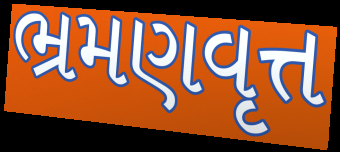
ભ્રમણવૃત્ત